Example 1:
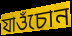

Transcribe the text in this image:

যাওঁচোন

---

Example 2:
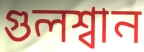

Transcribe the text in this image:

গুলশ্বান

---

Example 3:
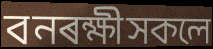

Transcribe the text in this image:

বনৰক্ষীসকলে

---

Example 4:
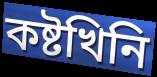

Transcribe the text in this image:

কষ্টখিনি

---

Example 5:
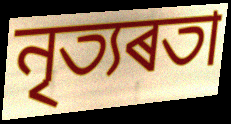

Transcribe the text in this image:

নৃত্যৰতা